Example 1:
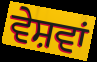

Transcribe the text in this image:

ਵੇਸ਼ਵਾਂ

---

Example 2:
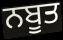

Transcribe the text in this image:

ਨਬੂਤ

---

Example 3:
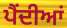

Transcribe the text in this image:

ਪੈਂਦੀਆਂ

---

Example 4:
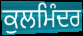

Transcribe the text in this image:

ਕੁਲਮਿੰਦਰ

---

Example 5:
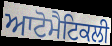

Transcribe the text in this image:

ਆਟੋਮੈਟਿਕਲੀ